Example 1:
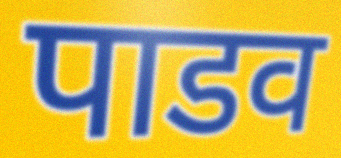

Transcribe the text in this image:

पाडव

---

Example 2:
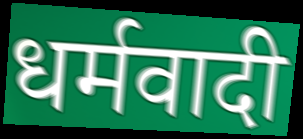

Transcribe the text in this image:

धर्मवादी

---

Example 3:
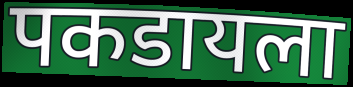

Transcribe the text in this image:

पकडायला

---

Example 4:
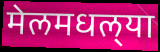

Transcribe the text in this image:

मेलमधल्या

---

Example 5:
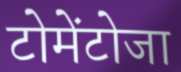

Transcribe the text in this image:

टोमेंटोजा